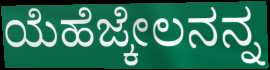
ಯೆಹೆಜ್ಕೇಲನನ್ನ